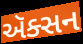
ઍક્સન